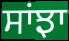
ਸਾਂਝਾ